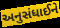
અનુસંધાઈને